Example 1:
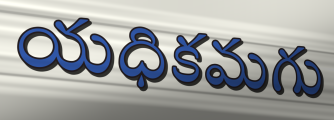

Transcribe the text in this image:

యధికమగు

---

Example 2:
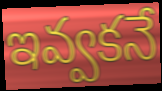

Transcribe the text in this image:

ఇవ్వకనే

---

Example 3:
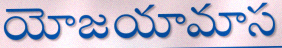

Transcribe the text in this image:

యోజయామాస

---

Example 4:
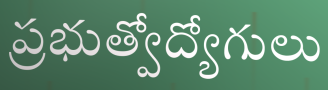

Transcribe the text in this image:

ప్రభుత్వోద్యోగులు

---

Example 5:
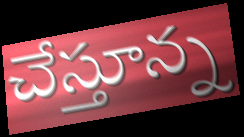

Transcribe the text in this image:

చేస్తూన్న